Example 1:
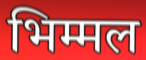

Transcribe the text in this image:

भिम्मल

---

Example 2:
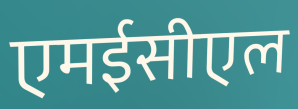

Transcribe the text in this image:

एमईसीएल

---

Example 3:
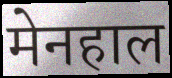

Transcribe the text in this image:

मेनहाल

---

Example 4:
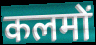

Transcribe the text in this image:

कलमों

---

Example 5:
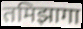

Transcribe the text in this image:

तमिझागा